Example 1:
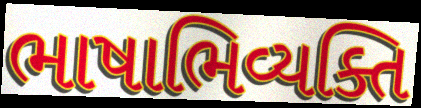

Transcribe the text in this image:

ભાષાભિવ્યક્તિ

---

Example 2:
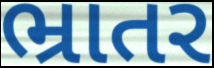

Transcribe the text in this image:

ભ્રાતર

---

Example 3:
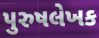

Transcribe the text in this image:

પુરુષલેખક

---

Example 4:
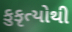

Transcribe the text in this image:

કુકૃત્યોથી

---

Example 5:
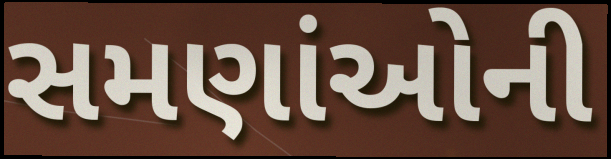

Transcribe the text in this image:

સમણાંઓની